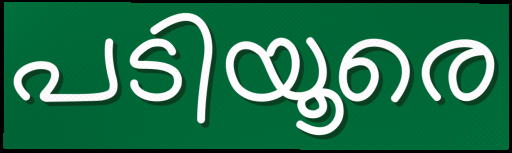
പടിയൂരെ